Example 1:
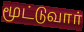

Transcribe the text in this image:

மூட்டுவார்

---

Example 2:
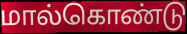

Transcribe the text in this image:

மால்கொண்டு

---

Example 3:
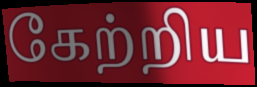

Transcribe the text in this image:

கேற்றிய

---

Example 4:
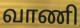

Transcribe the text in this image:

வாணி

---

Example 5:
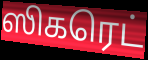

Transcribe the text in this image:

ஸிகரெட்